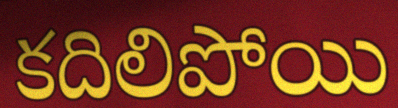
కదిలిపోయి